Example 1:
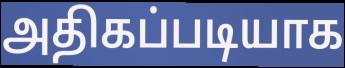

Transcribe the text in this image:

அதிகப்படியாக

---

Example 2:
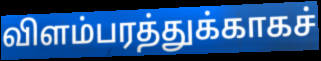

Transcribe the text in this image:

விளம்பரத்துக்காகச்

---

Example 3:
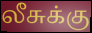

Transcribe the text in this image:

லீசுக்கு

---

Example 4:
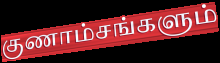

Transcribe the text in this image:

குணாம்சங்களும்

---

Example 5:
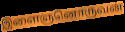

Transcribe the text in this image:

இளைஞனொருவன்